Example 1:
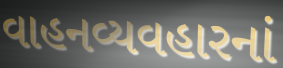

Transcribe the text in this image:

વાહનવ્યવહારનાં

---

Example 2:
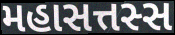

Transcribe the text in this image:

મહાસત્તસ્સ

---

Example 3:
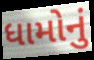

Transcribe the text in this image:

ધામોનું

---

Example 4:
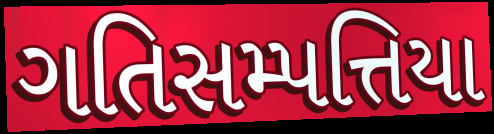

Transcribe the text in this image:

ગતિસમ્પત્તિયા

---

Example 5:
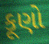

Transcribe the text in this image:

કૂણો